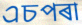
এচপৰা